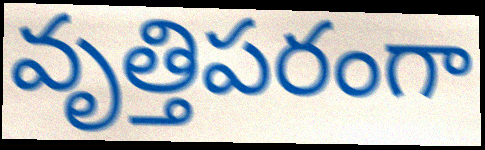
వృత్తిపరంగా